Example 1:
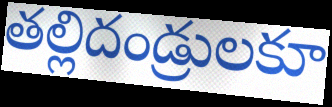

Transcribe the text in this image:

తల్లిదండ్రులకూ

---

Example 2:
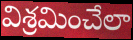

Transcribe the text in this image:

విశ్రమించేలా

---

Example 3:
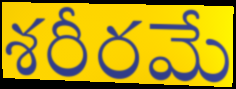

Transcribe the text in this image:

శరీరమే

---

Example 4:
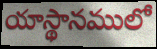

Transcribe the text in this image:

యాస్థానములో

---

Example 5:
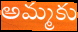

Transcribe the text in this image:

అమ్మకు